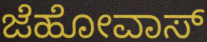
ಜೆಹೋವಾಸ್